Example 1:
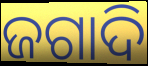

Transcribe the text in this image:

ଜଗାଦି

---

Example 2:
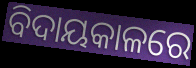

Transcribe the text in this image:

ବିଦାୟକାଳରେ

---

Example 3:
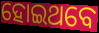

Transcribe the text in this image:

ହୋଇଥବେ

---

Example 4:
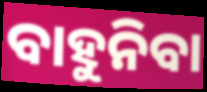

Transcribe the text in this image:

ବାହୁନିବା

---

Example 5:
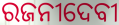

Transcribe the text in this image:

ରଜନୀଦେବୀ